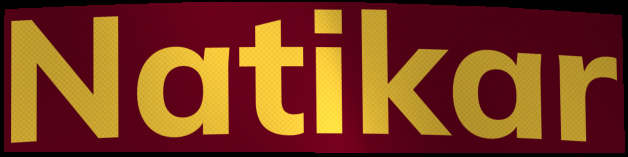
Natikar